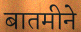
बातमीने